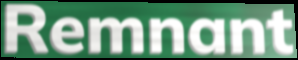
Remnant